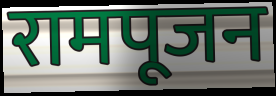
रामपूजन